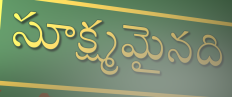
సూక్ష్మమైనది